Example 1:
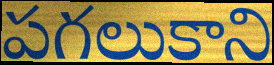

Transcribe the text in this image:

పగలుకాని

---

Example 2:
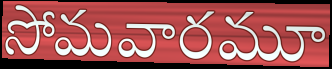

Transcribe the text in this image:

సోమవారమూ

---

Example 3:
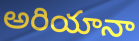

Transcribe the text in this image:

అరియానా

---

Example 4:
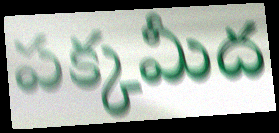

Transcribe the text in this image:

పక్కమీద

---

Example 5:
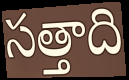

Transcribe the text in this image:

సత్తాది